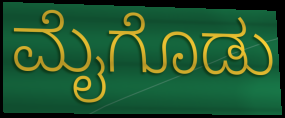
ಮೈಗೊಡು